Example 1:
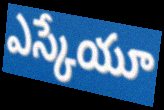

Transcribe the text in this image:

ఎస్కేయూ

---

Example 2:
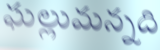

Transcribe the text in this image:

ఘల్లుమన్నది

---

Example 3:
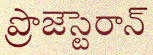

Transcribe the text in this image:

ప్రొజెస్టెరాన్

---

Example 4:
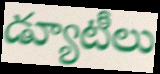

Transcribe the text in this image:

డ్యూటీలు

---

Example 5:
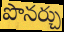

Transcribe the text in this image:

పొనర్చు